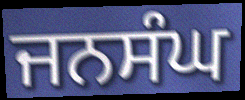
ਜਨਸੰਘ